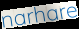
narhare